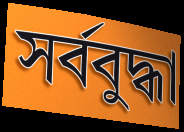
সৰ্ববুদ্ধা